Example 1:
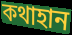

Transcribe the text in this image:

কথাহান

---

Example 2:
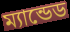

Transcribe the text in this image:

ম্যান্ডেড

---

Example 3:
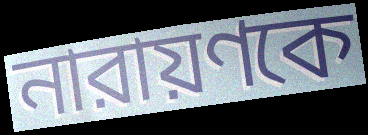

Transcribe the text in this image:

নারায়ণকে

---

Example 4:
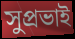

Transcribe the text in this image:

সুপ্রভাই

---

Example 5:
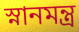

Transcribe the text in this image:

স্নানমন্ত্র